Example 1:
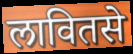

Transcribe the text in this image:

लावितसे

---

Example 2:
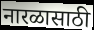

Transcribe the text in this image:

नारळासाठी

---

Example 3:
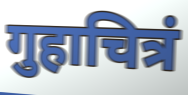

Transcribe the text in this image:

गुहाचित्रं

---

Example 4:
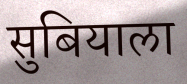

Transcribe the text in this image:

सुबियाला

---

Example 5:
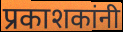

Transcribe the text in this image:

प्रकाशकांनी